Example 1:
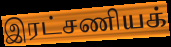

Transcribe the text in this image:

இரட்சணியக்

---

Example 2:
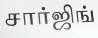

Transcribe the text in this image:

சார்ஜிங்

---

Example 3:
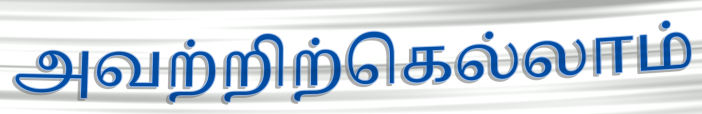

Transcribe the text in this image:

அவற்றிற்கெல்லாம்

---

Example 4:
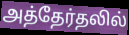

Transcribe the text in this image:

அத்தேர்தலில்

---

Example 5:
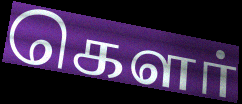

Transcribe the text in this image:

கௌர்